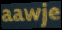
aawje